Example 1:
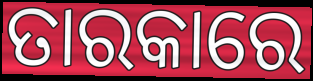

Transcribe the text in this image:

ତାରକାରେ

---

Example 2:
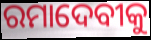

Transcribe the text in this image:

ରମାଦେବୀକୁ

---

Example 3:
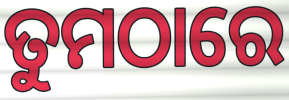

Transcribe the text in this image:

ତୁମଠାରେ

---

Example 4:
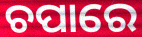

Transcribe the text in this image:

ଚପାରେ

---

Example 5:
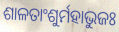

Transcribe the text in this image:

ଶାଳତାଂଶୁର୍ମହାଭୁଜଃ